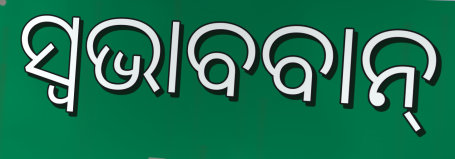
ସ୍ଵଭାବବାନ୍